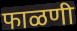
फाळणी